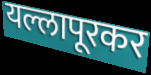
यल्लापूरकर